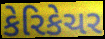
કેરિકેચર